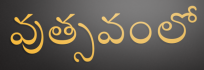
వుత్సవంలో